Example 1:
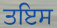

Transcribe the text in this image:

ਤਇਸ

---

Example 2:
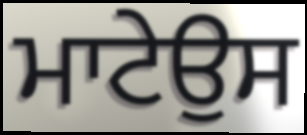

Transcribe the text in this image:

ਮਾਟੇਉਸ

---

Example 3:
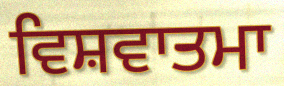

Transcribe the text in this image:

ਵਿਸ਼ਵਾਤਮਾ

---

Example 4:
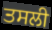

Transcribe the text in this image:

ਤਸਲੀ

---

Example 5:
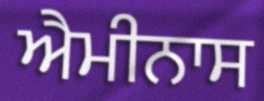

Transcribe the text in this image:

ਐਮੀਨਾਸ